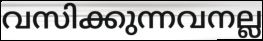
വസിക്കുന്നവനല്ല